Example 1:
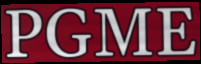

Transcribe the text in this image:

PGME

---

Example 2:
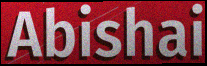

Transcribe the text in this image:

Abishai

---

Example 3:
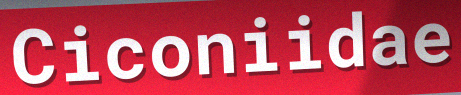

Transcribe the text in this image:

Ciconiidae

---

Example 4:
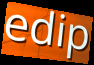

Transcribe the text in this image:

edip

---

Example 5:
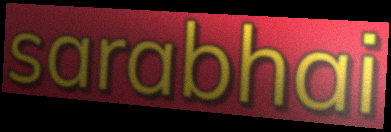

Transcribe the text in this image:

sarabhai